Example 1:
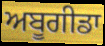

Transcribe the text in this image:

ਅਬੂਗੀਡਾ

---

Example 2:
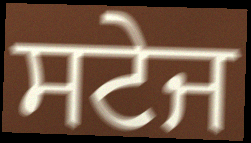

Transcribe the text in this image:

ਸਟੇਜ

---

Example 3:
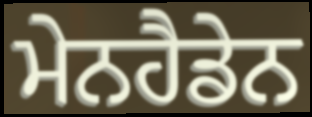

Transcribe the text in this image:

ਮੇਨਹੈਡੇਨ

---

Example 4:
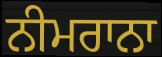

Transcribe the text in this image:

ਨੀਮਰਾਨਾ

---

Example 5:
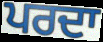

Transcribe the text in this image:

ਪਰਦਾ